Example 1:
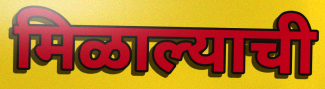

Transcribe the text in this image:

मिळाल्याची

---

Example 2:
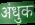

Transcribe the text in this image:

अंधुक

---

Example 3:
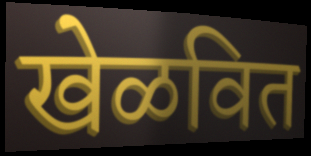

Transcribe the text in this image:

खेळवित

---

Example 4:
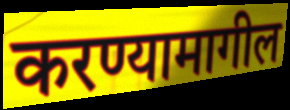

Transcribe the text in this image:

करण्यामागील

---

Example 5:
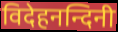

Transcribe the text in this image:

विदेहनन्दिनी